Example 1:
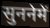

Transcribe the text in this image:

सुननेमें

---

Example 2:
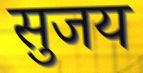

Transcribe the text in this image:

सुजय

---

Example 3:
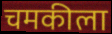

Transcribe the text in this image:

चमकीला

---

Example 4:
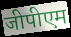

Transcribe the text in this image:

जीपीएम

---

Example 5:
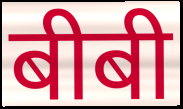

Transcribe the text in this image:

बीबी